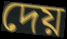
দেয়